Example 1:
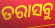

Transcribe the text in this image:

ତରାସବୁ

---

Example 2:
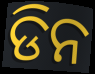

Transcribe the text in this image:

ଡିନ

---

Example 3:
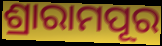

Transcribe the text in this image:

ଶ୍ରାରାମପୂର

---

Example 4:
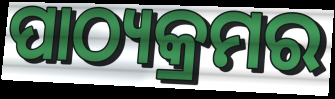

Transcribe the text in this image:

ପାଠ୍ୟକ୍ରମର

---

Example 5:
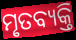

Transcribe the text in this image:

ମୃତବ୍ୟକ୍ତି